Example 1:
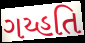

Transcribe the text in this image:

ગય્હતિ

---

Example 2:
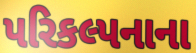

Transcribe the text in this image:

પરિકલ્પનાના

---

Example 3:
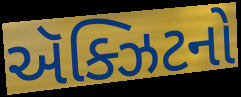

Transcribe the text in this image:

ઍક્ઝિટનો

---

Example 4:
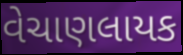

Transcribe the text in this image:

વેચાણલાયક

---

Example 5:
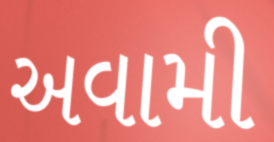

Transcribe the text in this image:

અવામી